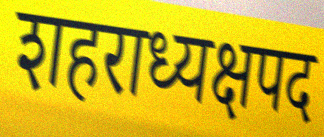
शहराध्यक्षपद